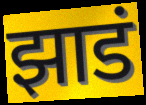
झाडं